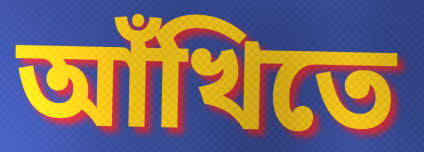
আঁখিতে